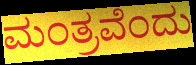
ಮಂತ್ರವೆಂದು